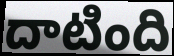
దాటింది